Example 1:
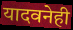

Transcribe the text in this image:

यादवनेही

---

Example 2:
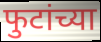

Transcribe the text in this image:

फुटांच्या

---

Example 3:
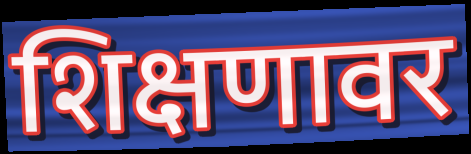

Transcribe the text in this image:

शिक्षणावर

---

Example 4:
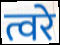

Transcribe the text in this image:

त्वरे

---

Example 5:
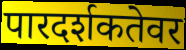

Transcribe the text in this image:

पारदर्शकतेवर